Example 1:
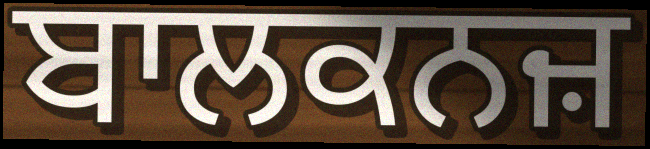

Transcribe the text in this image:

ਬਾਲਕਨਜ਼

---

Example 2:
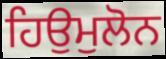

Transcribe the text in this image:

ਹਿਉਮੁਲੋਨ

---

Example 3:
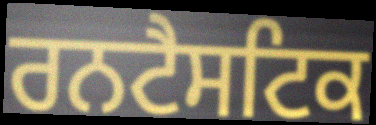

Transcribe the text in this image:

ਰਨਟੈਸਟਿਕ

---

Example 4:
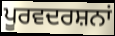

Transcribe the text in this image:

ਪੂਰਵਦਰਸ਼ਨਾਂ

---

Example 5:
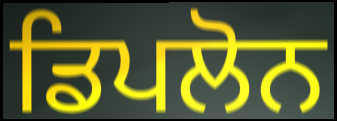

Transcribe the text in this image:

ਡਿਪਲੋਨ